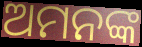
ଅମନଙ୍କ